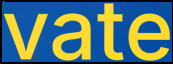
vate